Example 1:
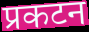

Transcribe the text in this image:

प्रकटन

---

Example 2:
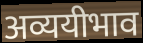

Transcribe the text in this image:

अव्ययीभाव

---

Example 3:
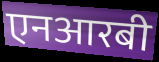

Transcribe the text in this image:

एनआरबी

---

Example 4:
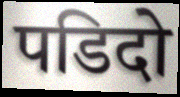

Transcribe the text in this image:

पडिदो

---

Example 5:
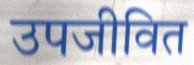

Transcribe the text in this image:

उपजीवित